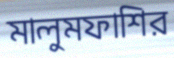
মালুমফাশির